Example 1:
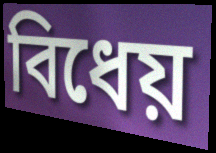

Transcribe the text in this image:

বিধেয়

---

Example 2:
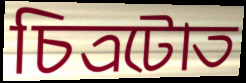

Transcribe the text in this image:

চিত্ৰটোত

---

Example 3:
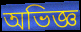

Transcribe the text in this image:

অভিজ্ঞ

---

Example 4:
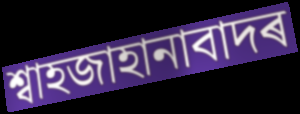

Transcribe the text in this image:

শ্বাহজাহানাবাদৰ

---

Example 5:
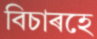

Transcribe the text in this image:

বিচাৰহে